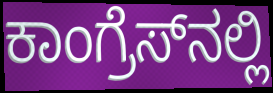
ಕಾಂಗ್ರೆಸ್‍ನಲ್ಲಿ